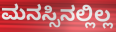
ಮನಸ್ಸಿನಲ್ಲಿಲ್ಲ